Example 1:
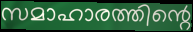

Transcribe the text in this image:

സമാഹാരത്തിന്റെ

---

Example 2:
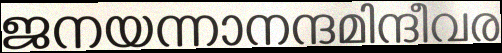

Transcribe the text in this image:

ജനയന്നാനന്ദമിന്ദീവര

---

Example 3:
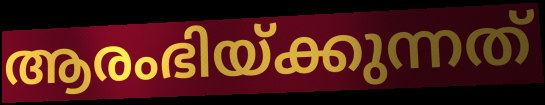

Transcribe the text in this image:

ആരംഭിയ്ക്കുന്നത്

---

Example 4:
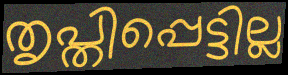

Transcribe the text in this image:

തൃപ്തിപ്പെട്ടില്ല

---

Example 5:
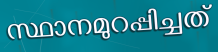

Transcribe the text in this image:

സ്ഥാനമുറപ്പിച്ചത്